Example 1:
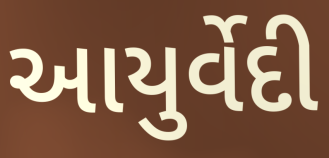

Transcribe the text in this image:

આયુર્વેદી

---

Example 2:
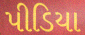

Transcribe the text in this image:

પીડિયા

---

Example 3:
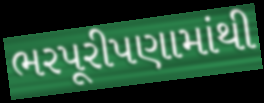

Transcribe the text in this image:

ભરપૂરીપણામાંથી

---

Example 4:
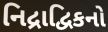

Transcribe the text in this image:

નિદ્રાદ્વિકનો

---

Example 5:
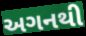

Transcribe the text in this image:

અગનથી